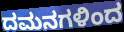
ದಮನಗಳಿಂದ